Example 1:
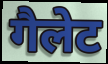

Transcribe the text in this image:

गैलेट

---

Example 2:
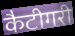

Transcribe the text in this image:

कैटीगरी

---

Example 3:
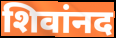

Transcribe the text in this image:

शिवांनद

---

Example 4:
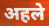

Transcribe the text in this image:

अहले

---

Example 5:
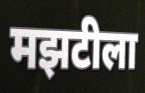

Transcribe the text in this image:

मझटीला